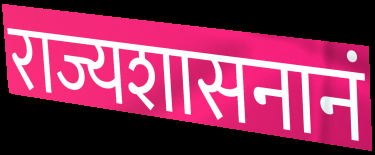
राज्यशासनानं